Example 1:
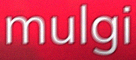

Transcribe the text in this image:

mulgi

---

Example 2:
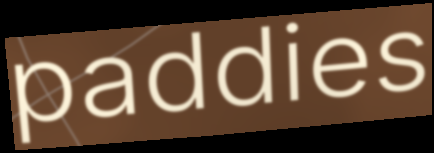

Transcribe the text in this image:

paddies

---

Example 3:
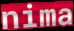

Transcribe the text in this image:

nima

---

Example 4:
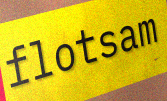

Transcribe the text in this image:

flotsam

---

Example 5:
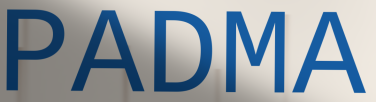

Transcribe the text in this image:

PADMA